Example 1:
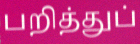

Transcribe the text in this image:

பறித்துப்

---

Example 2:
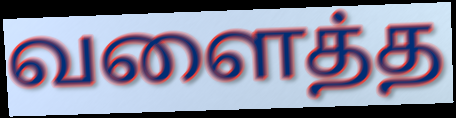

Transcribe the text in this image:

வளைத்த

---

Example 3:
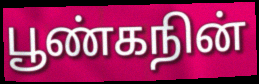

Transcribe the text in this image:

பூண்கநின்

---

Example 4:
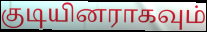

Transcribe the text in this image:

குடியினராகவும்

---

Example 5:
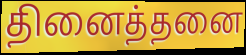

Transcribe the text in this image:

தினைத்தனை